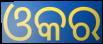
ଓକର